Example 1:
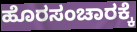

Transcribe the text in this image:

ಹೊರಸಂಚಾರಕ್ಕೆ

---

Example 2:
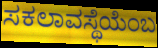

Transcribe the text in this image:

ಸಕಲಾವಸ್ಥೆಯೆಂಬ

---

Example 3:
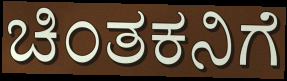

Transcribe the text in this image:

ಚಿಂತಕನಿಗೆ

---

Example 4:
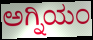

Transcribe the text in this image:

ಅಗ್ನಿಯಂ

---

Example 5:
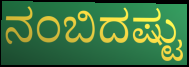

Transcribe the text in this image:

ನಂಬಿದಷ್ಟು